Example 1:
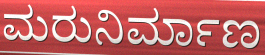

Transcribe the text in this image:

ಮರುನಿರ್ಮಾಣ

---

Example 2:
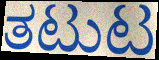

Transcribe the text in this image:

ತಟುಟ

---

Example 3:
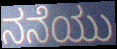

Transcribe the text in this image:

ನನೆಯು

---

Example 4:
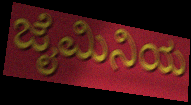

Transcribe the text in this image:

ಜೈಮಿನಿಯ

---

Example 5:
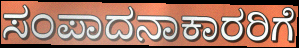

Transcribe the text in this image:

ಸಂಪಾದನಾಕಾರರಿಗೆ